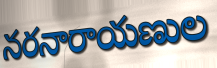
నరనారాయణుల